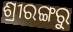
ଶ୍ରୀରଙ୍ଗରୁ